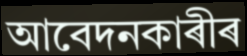
আবেদনকাৰীৰ